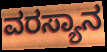
ವರಸ್ಯಾನ